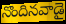
నొందినవాడై